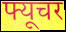
फ्यूचर